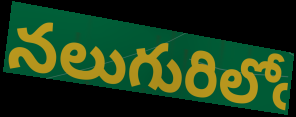
నలుగురిలోఁ